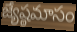
జ్యేష్ఠమాసం